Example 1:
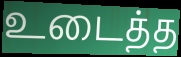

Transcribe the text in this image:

உடைத்த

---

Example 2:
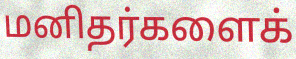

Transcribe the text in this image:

மனிதர்களைக்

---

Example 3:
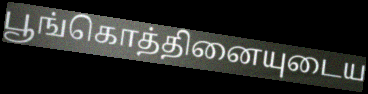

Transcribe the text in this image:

பூங்கொத்தினையுடைய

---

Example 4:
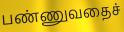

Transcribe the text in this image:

பண்ணுவதைச்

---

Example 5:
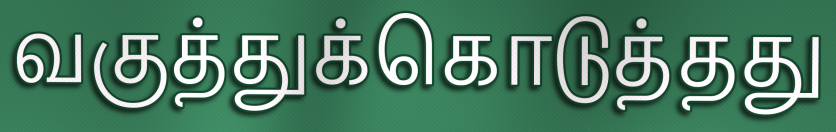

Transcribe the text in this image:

வகுத்துக்கொடுத்தது